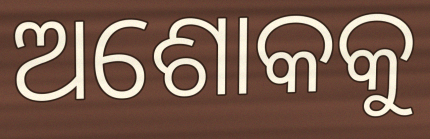
ଅଶୋକକୁ